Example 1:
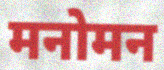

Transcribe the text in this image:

मनोमन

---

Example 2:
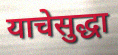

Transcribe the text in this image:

याचेसुद्धा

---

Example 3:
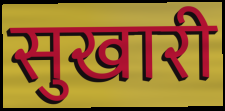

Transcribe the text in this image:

सुखारी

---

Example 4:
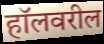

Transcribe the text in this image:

हॉलवरील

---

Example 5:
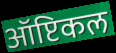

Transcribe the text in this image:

ऑप्टिकल